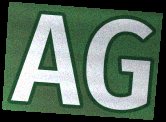
AG